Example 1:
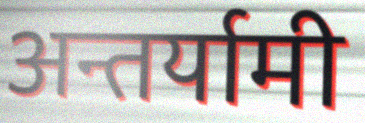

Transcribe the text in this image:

अन्‍तर्यामी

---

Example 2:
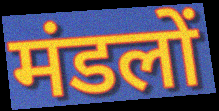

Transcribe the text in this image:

मंडलों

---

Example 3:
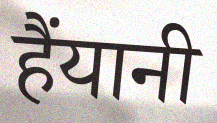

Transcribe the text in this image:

हैंयानी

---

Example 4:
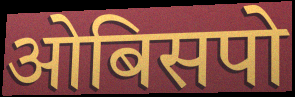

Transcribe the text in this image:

ओबिसपो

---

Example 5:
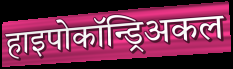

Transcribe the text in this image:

हाइपोकॉन्ड्रिअकल